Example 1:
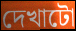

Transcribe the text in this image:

দেখাটো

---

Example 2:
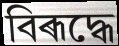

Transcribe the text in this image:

বিৰূদ্ধে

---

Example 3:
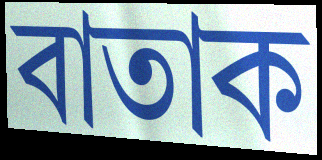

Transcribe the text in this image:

বাতাক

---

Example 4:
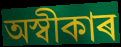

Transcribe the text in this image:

অস্বীকাৰ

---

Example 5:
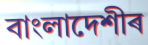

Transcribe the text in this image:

বাংলাদেশীৰ